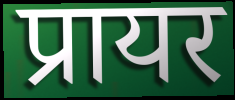
प्रायर